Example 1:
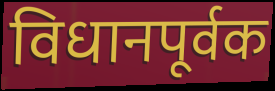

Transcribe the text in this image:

विधानपूर्वक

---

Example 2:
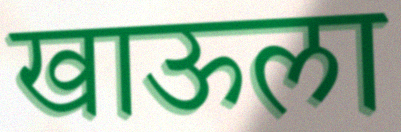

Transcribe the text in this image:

खाऊला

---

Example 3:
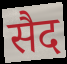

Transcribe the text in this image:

सैद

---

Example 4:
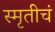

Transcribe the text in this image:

स्मृतीचं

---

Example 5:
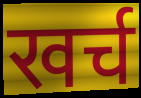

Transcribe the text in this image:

खर्च